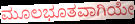
ಮೂಲಭೂತವಾಗಿಯೇ